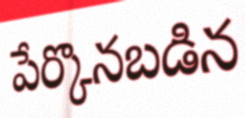
పేర్కొనబడిన